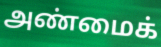
அண்மைக்